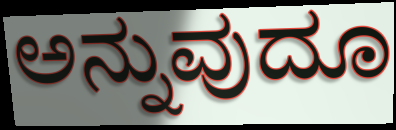
ಅನ್ನುವುದೂ